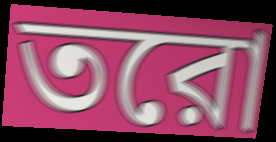
তরো